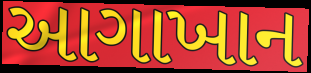
આગાખાન